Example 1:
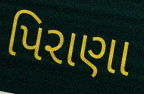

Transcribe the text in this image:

પિરાણા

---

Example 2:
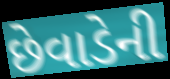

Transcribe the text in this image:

છેવાડેની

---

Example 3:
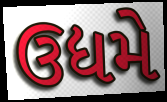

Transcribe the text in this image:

ઉદ્યમે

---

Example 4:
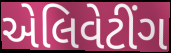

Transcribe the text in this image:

એલિવેટીંગ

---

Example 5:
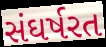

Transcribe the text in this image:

સંઘર્ષરત